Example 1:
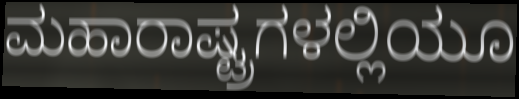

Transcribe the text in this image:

ಮಹಾರಾಷ್ಟ್ರಗಳಲ್ಲಿಯೂ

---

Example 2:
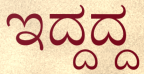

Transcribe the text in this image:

ಇದ್ದದ್ದ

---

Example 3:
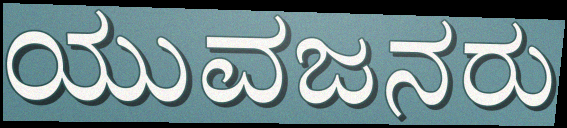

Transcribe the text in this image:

ಯುವಜನರು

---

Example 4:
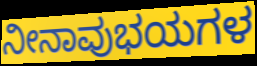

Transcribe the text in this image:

ನೀನಾವುಭಯಗಳ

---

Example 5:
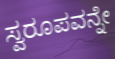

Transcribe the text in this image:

ಸ್ವರೂಪವನ್ನೇ